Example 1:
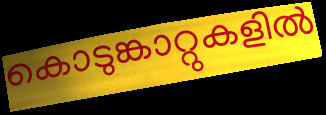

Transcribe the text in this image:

കൊടുങ്കാറ്റുകളിൽ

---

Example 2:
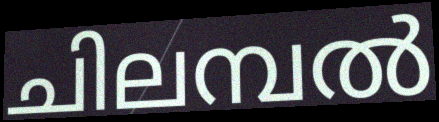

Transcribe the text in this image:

ചിലമ്പൽ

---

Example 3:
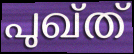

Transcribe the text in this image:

പുഖ്ത്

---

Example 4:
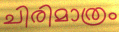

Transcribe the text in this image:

ചിരിമാത്രം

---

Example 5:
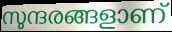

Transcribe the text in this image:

സുന്ദരങ്ങളാണ്